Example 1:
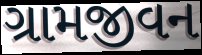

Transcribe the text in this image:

ગ્રામજીવન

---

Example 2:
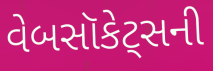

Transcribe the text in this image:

વેબસૉકેટ્સની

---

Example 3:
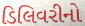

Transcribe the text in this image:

ડિલિવરીનો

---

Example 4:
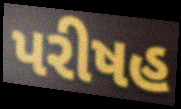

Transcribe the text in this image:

પરીષહ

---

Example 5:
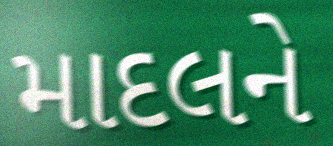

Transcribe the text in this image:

માદલને